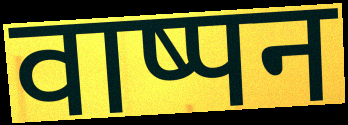
वाष्पन